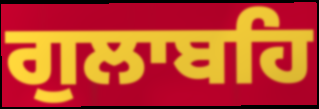
ਗੁਲਾਬਹਿ